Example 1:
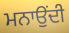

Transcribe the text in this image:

ਮਨਾਉਂਦੀ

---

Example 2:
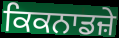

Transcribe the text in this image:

ਕਿਕਨਾਡਜ਼ੇ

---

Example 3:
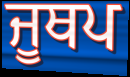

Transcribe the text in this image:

ਜੂਥਪ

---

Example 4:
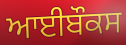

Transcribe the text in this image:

ਆਈਬੌਕਸ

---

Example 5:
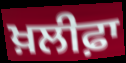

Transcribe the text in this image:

ਖ਼ਲੀਫ਼ਾ